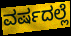
ವರ್ಷದಲ್ಲೆ